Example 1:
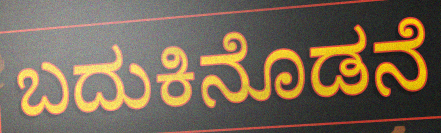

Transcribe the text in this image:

ಬದುಕಿನೊಡನೆ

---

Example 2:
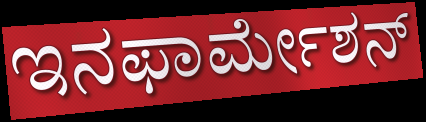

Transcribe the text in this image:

ಇನಫಾರ್ಮೇಶನ್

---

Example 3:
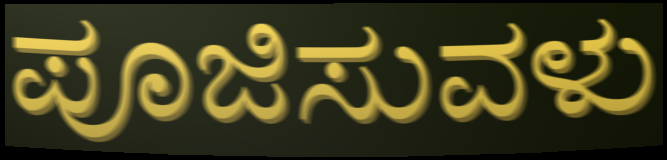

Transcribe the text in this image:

ಪೂಜಿಸುವಳು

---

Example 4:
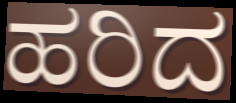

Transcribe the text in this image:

ಹರಿದ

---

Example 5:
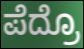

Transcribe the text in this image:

ಪೆದ್ರೊ